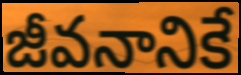
జీవనానికే